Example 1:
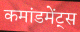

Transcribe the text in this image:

कमांडमेंट्स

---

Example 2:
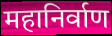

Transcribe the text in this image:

महानिर्वाण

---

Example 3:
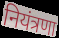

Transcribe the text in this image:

नियंत्रणा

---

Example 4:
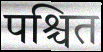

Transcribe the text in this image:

पश्चित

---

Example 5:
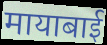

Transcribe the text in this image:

मायाबाई